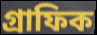
গ্ৰাফিক